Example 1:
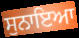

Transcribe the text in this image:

ਸੁਨਾਇਆ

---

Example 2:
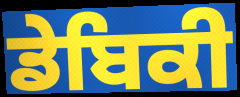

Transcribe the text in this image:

ਡੇਬਿਕੀ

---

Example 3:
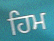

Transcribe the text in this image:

ਹਿਮ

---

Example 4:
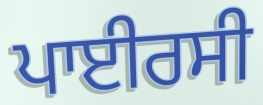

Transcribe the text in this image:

ਪਾਈਰਸੀ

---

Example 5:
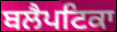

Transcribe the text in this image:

ਬਲੈਪਟਿਕਾ